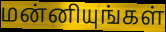
மன்னியுங்கள்